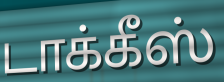
டாக்கீஸ்